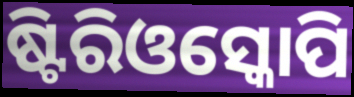
ଷ୍ଟିରିଓସ୍କୋପି